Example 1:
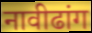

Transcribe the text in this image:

नावीढांग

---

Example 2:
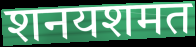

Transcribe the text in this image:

शनयशमत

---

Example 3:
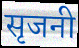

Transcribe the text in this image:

सृजनी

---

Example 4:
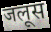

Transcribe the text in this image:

जलूस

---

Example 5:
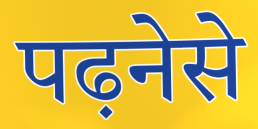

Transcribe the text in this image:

पढ़नेसे